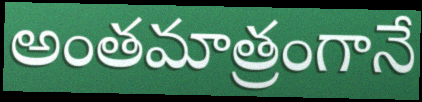
అంతమాత్రంగానే